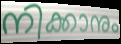
നിക്കാനും